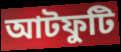
আটফুটি